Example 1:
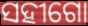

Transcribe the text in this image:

ସହୀଗୋ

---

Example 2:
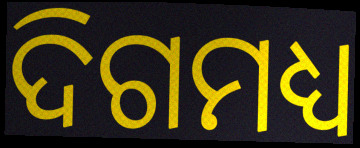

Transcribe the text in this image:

ଦିଗମଧ୍ୟ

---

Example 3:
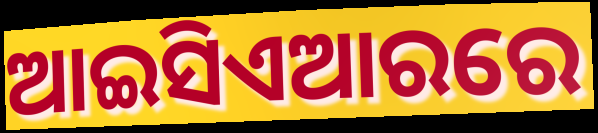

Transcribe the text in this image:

ଆଇସିଏଆରରେ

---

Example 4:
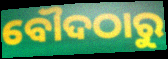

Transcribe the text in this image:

ବୌଦଠାରୁ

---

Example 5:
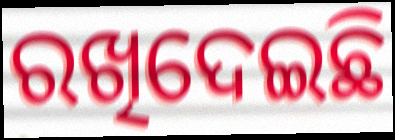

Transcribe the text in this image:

ରଖିଦେଇଛି